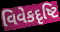
વિવેકદૃષ્ટિ